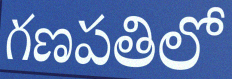
గణపతిలో